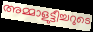
അമ്മാളുട്ടീച്ചറുടെ